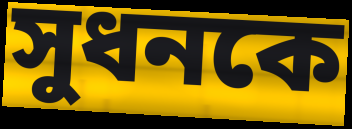
সুধনকে